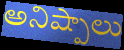
అనిష్పాలు